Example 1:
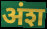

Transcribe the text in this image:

अंश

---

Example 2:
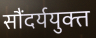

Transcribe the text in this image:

सौंदर्ययुक्त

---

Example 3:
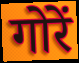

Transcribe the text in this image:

गोरें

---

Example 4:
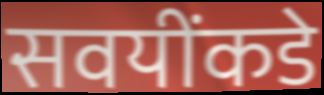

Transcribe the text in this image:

सवयींकडे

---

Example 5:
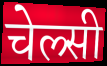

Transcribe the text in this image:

चेल्सी